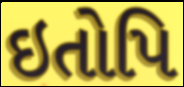
ઇતોપિ